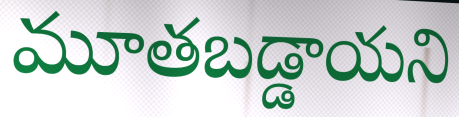
మూతబడ్డాయని